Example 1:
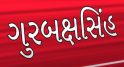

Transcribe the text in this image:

ગુરબક્ષસિંહ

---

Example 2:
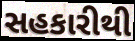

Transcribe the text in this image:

સહકારીથી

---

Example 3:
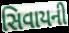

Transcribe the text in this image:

સિવાયની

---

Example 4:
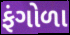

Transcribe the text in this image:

ફંગોળા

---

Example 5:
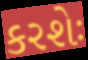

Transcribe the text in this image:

કરશેઃ